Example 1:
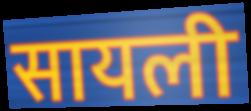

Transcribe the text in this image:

सायली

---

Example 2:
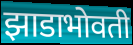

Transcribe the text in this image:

झाडाभोवती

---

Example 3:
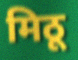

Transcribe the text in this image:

मिठू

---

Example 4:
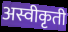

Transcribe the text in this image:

अस्वीकृती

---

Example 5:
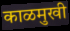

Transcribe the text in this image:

काळमुखी